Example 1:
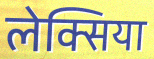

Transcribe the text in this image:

लेक्सिया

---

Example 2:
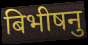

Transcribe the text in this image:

बिभीषनु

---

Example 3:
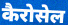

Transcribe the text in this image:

कैरोसेल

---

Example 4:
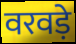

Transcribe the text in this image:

वरवड़े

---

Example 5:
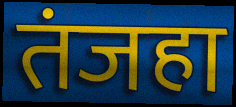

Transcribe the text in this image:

तंजहा